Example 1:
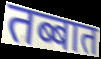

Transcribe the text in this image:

तब्बात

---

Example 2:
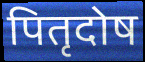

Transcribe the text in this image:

पितृदोष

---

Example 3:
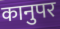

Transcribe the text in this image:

कानुपर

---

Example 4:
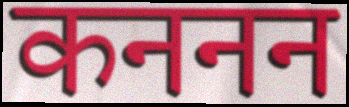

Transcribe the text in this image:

कननन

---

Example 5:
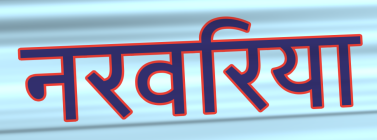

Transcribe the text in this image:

नरवरिया